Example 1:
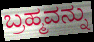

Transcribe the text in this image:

ಬ್ರಹ್ಮವನ್ನು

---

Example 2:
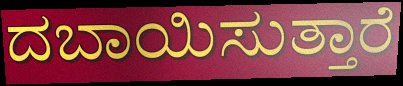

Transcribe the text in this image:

ದಬಾಯಿಸುತ್ತಾರೆ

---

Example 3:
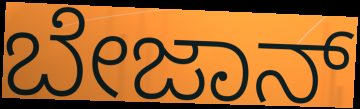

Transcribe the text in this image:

ಬೇಜಾನ್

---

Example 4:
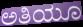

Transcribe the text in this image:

ಅತಿಯೂ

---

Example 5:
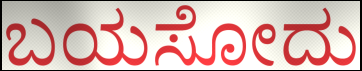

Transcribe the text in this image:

ಬಯಸೋದು